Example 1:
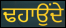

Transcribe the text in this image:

ਢਹਾਉਂਦੇ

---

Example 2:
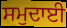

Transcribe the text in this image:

ਸਮੁਦਾਈ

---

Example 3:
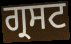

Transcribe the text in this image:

ਗ੍ਰਸਟ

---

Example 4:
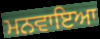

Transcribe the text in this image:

ਮਨਵਾਇਆ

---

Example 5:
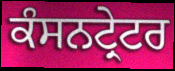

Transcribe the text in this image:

ਕੰਸਨਟ੍ਰੇਟਰ